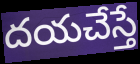
దయచేస్తే